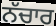
ਨੱਚਾਰ